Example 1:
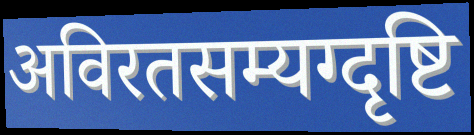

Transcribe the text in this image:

अविरतसम्यग्दृष्टि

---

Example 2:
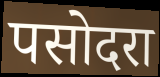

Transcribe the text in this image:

पसोदरा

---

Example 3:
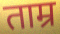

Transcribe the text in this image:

ताम्र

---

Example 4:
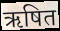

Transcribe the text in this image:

ऋषित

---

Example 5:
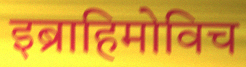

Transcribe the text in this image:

इब्राहिमोविच